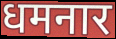
धमनार